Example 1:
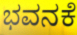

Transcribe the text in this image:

ಭವನಕೆ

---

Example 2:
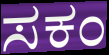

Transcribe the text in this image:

ಸಕಂ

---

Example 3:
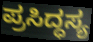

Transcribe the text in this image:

ಪ್ರಸಿದ್ಧಸ್ಯ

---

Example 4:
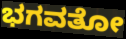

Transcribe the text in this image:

ಭಗವತೋ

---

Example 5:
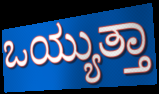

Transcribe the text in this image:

ಒಯ್ಯುತ್ತಾ